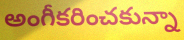
అంగీకరించకున్నా